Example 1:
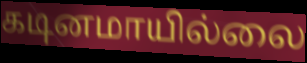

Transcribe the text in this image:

கடினமாயில்லை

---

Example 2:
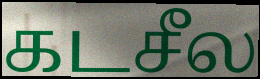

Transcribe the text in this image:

கடசீல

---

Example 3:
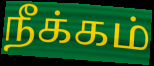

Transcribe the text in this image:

நீக்கம்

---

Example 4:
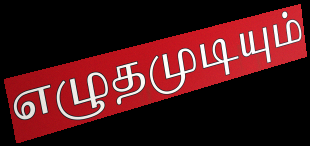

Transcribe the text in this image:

எழுதமுடியும்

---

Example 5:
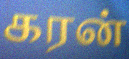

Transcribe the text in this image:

கரன்